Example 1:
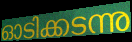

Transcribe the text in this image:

ഓടിക്കടന്നു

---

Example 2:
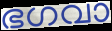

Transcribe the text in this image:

ഭഗവാ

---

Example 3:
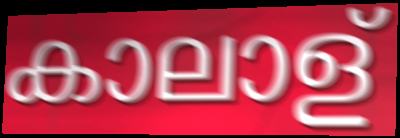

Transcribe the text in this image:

കാലാള്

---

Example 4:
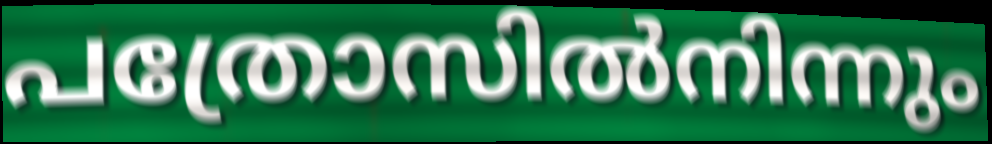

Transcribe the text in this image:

പത്രോസിൽനിന്നും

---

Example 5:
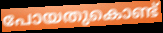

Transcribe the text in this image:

പോയതുകൊണ്ട്